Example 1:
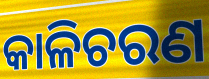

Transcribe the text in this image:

କାଳିଚରଣ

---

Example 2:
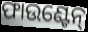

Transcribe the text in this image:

ଫାଉଣ୍ଟେନ୍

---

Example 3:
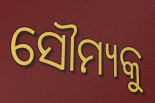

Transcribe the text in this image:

ସୌମ୍ୟକୁ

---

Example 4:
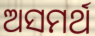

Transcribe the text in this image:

ଅସମର୍ଥ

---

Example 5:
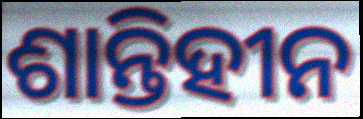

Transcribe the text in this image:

ଶାନ୍ତିହୀନ